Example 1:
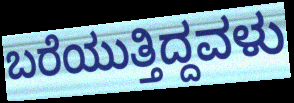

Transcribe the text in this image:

ಬರೆಯುತ್ತಿದ್ದವಳು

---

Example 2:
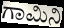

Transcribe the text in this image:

ಗಾಮಿನಿ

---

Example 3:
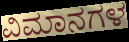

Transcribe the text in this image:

ವಿಮಾನಗಳ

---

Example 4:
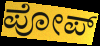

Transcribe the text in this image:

ಪೋಪ್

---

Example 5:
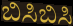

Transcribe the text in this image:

ಬಿಸಿಬಿಸಿ